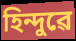
হিন্দুৱে